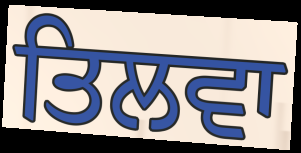
ਤਿਲਵਾ